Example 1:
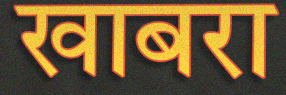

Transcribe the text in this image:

खाबरा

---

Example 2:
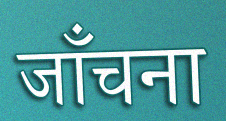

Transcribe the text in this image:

जाँचना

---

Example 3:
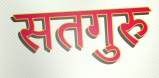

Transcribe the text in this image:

सतगुरु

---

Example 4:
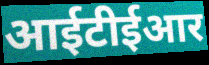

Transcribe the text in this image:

आईटीईआर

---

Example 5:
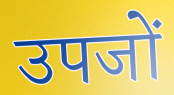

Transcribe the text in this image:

उपजों